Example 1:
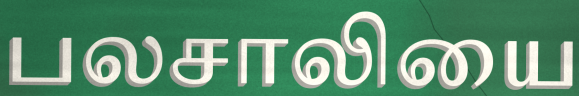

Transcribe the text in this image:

பலசாலியை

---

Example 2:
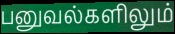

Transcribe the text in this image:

பனுவல்களிலும்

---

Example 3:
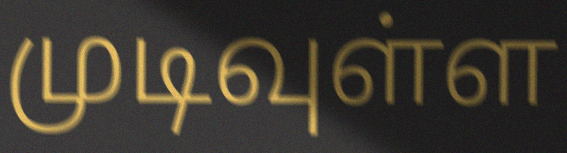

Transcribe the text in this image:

முடிவுள்ள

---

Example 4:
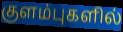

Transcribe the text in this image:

குளம்புகளில்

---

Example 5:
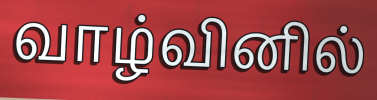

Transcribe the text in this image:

வாழ்வினில்